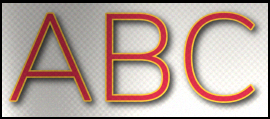
ABC